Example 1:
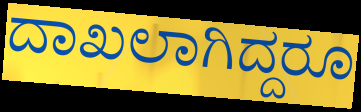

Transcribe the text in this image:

ದಾಖಲಾಗಿದ್ದರೂ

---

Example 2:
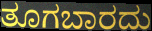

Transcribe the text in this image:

ತೂಗಬಾರದು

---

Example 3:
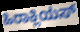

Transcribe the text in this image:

ಹಿರಾಕ್ಲಿಯಸ್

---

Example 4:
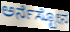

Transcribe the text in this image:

ಅರ್ನೆಸ್ಟೋನ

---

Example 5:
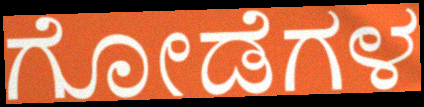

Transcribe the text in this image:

ಗೋಡೆಗಳ